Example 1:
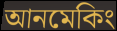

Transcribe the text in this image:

আনমেকিং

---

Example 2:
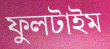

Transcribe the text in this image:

ফুলটাইম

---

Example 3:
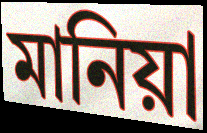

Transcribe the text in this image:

মানিয়া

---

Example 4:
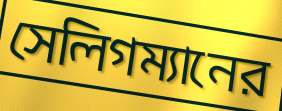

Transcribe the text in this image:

সেলিগম্যানের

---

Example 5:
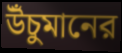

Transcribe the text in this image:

উঁচুমানের